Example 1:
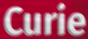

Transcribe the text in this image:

Curie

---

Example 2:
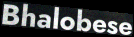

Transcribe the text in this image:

Bhalobese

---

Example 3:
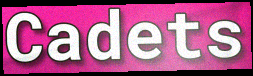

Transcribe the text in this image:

Cadets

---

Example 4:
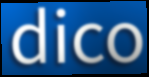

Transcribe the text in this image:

dico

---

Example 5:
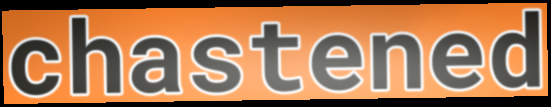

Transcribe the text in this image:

chastened